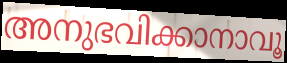
അനുഭവിക്കാനാവൂ